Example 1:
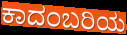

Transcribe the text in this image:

ಕಾದಂಬರಿಯ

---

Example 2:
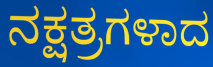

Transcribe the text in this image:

ನಕ್ಷತ್ರಗಳಾದ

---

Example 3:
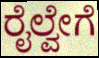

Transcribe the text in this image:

ರೈಲ್ವೇಗೆ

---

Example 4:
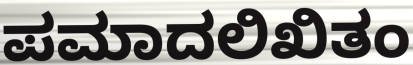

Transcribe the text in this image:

ಪಮಾದಲಿಖಿತಂ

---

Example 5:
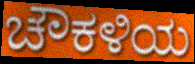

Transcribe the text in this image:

ಚೌಕಳಿಯ